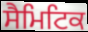
ਸੈਮਿਟਿਕ